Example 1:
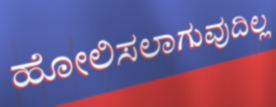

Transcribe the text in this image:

ಹೋಲಿಸಲಾಗುವುದಿಲ್ಲ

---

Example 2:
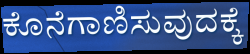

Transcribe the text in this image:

ಕೊನೆಗಾಣಿಸುವುದಕ್ಕೆ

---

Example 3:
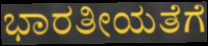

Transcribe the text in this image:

ಭಾರತೀಯತೆಗೆ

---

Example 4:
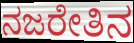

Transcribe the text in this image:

ನಜರೇತಿನ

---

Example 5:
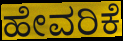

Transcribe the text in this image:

ಹೇವರಿಕೆ